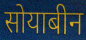
सोयाबीन